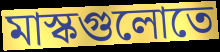
মাস্কগুলোতে